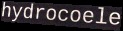
hydrocoele